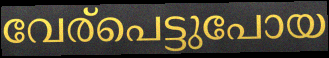
വേര്പെട്ടുപോയ